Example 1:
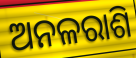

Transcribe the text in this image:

ଅନଳରାଶି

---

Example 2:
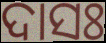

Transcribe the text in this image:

ଦାସଃ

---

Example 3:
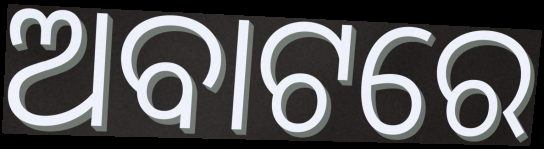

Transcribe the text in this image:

ଅବାଟରେ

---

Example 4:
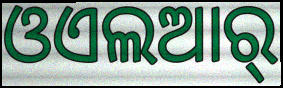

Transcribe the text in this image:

ଓଏଲଆର୍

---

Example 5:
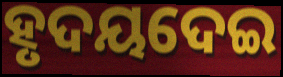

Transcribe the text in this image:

ହୃଦୟଦେଇ